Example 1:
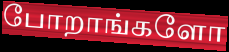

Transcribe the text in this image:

போறாங்களோ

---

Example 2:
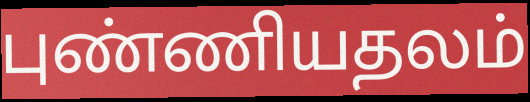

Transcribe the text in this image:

புண்ணியதலம்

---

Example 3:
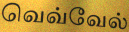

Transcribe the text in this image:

வெவ்வேல்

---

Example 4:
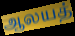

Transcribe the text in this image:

ஆலயத்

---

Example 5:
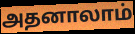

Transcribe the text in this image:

அதனாலாம்